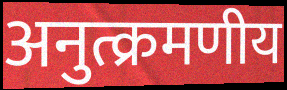
अनुत्क्रमणीय